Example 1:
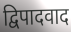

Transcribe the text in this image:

द्विपादवाद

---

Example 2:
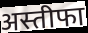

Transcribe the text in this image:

अस्तीफा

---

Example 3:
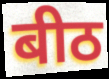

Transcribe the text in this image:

बीठ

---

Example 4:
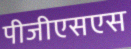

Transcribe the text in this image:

पीजीएसएस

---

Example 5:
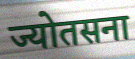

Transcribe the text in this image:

ज्योतसना